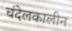
चंदेलकालीन